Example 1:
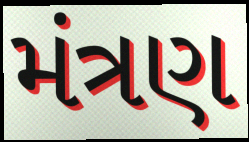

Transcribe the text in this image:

મંત્રણ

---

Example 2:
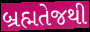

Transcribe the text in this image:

બ્રહ્મતેજથી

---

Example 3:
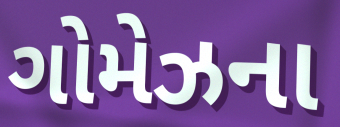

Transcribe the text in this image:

ગોમેઝના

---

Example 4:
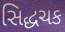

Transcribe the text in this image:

સિદ્ધચક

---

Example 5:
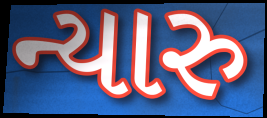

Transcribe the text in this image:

ન્યારુ